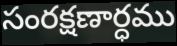
సంరక్షణార్ధము